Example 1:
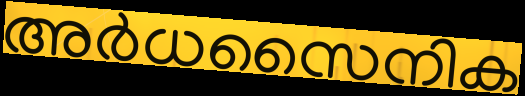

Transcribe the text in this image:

അർധസൈനിക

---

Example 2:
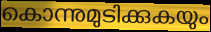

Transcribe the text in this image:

കൊന്നുമുടിക്കുകയും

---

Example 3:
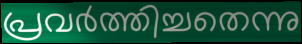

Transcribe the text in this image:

പ്രവർത്തിച്ചതെന്നു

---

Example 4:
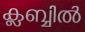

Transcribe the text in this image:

ക്ലബ്ബിൽ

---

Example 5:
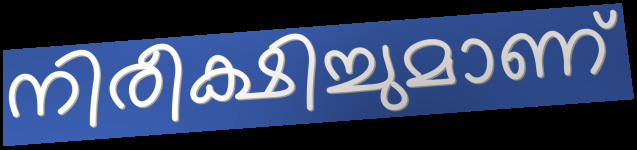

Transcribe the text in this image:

നിരീക്ഷിച്ചുമാണ്